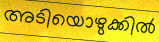
അടിയൊഴുക്കിൽ